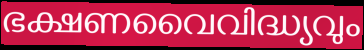
ഭക്ഷണവൈവിദ്ധ്യവും